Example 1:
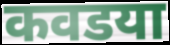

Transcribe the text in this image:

कवडया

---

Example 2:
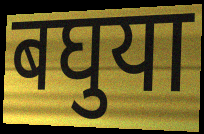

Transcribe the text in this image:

बघुया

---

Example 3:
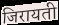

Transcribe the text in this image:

जिरायती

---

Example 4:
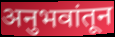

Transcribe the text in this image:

अनुभवांतून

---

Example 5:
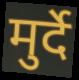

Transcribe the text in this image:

मुर्दे